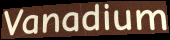
Vanadium